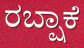
ರಬ್ಷಾಕೆ